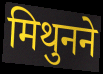
मिथुनने